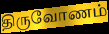
திருவோணம்